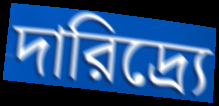
দারিদ্র্যে